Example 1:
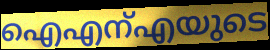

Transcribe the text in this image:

ഐഎന്എയുടെ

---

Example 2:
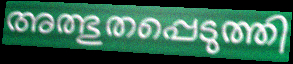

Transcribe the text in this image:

അത്ഭുതപ്പെടുത്തി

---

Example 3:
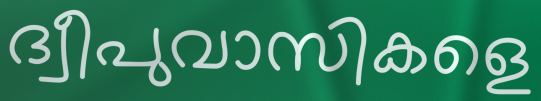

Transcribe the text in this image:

ദ്വീപുവാസികളെ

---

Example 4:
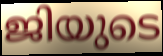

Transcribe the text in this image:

ജിയുടെ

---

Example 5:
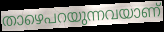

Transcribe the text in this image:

താഴെപറയുന്നവയാണ്